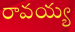
రావయ్య